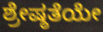
ಶ್ರೇಷ್ಠತೆಯೇ